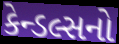
કેન્ડલ્સનો